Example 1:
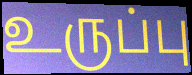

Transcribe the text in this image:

உருப்பு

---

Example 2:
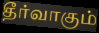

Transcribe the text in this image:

தீர்வாகும்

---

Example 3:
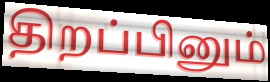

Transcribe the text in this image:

திறப்பினும்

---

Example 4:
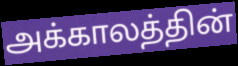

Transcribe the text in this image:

அக்காலத்தின்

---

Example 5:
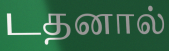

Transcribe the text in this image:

டதனால்